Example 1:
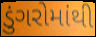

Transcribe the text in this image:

ડુંગરોમાંથી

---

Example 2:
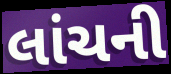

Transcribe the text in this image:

લાંચની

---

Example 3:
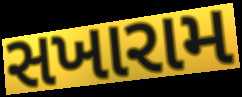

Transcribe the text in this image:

સખારામ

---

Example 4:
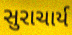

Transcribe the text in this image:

સુરાચાર્ય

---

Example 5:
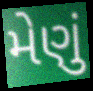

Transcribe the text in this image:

મેણું